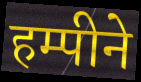
हम्पीने